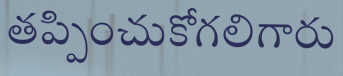
తప్పించుకోగలిగారు